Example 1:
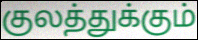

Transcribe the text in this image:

குலத்துக்கும்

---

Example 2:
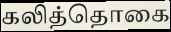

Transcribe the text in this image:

கலித்தொகை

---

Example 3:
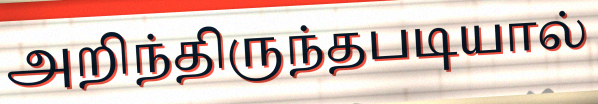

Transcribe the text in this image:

அறிந்திருந்தபடியால்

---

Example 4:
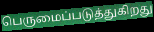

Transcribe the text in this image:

பெருமைப்படுத்துகிறது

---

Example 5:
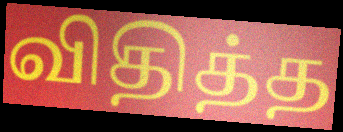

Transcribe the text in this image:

விதித்த